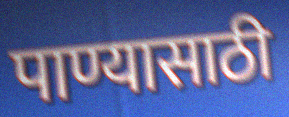
पाण्यासाठी